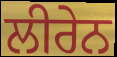
ਲੀਰੇਨ